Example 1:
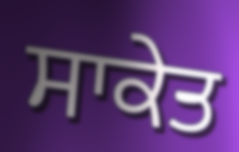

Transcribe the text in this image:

ਸਾਕੇਤ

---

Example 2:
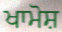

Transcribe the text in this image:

ਖਾਮੋਸ਼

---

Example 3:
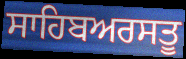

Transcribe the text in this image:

ਸਾਹਿਬਅਰਸਤੂ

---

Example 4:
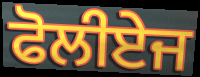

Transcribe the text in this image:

ਫੋਲੀਏਜ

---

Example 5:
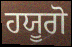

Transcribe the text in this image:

ਹਯੂਗੋ